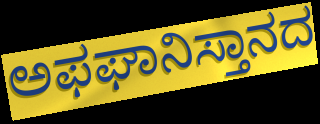
ಅಫಘಾನಿಸ್ತಾನದ